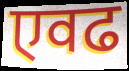
एवढ